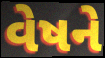
વેષને